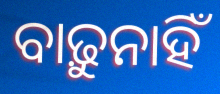
ବାଢ଼ୁନାହିଁ